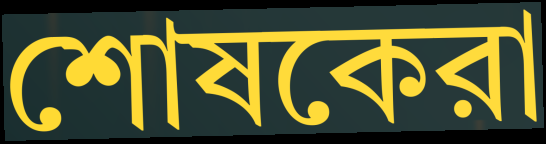
শোষকেরা